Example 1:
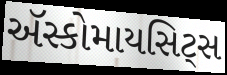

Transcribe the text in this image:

ઍસ્કોમાયસિટ્સ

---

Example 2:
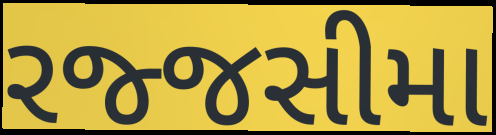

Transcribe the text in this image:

રજ્જસીમા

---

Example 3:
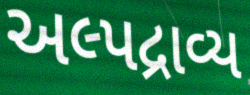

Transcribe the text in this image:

અલ્પદ્રાવ્ય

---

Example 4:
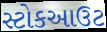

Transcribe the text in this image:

સ્ટોકઆઉટ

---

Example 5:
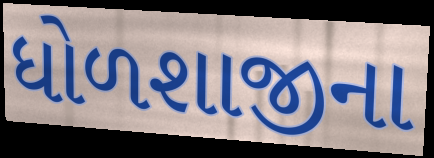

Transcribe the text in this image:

ધોળશાજીના